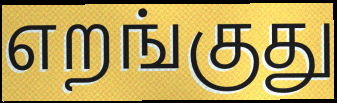
எறங்குது